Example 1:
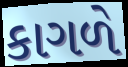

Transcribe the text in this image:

કાગળે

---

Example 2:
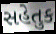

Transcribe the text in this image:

સહેતુક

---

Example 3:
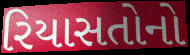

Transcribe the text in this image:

રિયાસતોનો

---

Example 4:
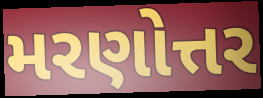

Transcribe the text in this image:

મરણોત્તર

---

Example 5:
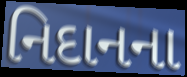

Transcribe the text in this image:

નિદાનના